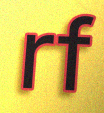
rf